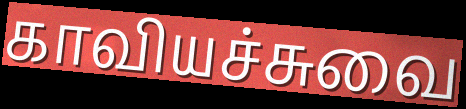
காவியச்சுவை